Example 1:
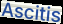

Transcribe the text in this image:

Ascitis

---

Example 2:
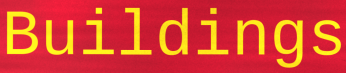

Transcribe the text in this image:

Buildings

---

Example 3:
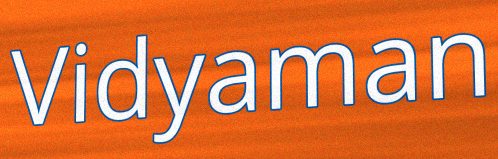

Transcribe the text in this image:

Vidyaman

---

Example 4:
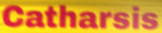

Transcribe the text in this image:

Catharsis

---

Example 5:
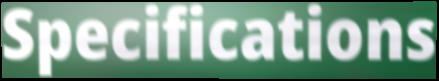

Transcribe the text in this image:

Specifications